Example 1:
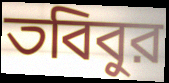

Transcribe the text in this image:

তবিবুর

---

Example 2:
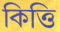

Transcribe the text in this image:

কিত্তি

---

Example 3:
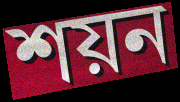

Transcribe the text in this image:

শয়ন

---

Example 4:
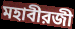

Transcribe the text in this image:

মহাবীরজী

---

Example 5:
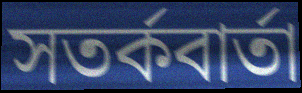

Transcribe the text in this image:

সতর্কবার্তা